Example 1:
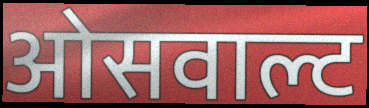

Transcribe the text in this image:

ओसवाल्ट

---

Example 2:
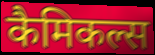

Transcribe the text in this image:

कैमिकल्स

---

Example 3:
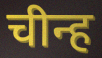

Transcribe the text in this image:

चीन्ह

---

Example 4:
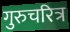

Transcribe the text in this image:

गुरुचरित्र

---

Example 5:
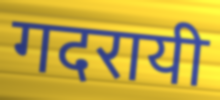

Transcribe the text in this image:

गदरायी